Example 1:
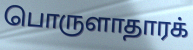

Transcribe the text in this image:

பொருளாதாரக்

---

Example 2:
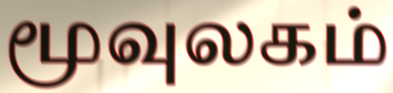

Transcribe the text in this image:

மூவுலகம்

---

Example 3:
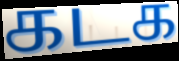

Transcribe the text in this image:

கடக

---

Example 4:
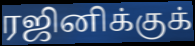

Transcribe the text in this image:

ரஜினிக்குக்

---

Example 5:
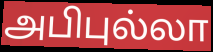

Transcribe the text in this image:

அபிபுல்லா